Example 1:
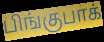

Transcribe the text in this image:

பிங்குபாக்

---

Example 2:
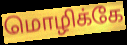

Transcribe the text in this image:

மொழிக்கே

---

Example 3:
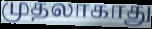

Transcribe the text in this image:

முதலாகாது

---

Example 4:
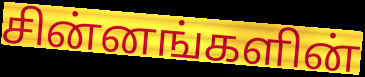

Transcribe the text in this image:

சின்னங்களின்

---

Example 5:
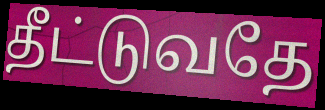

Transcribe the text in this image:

தீட்டுவதே